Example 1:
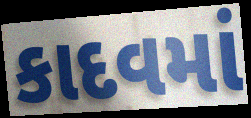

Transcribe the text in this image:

કાદવમાં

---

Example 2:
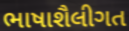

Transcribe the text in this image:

ભાષાશૈલીગત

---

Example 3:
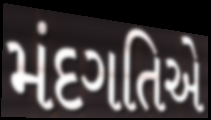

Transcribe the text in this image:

મંદગતિએ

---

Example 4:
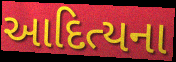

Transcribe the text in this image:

આદિત્યના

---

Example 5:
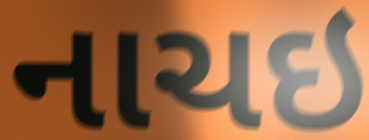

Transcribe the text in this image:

નાચઇ